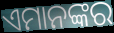
ଏମାନଙ୍କର